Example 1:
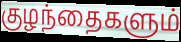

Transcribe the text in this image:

குழந்தைகளும்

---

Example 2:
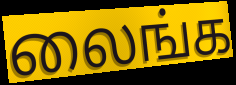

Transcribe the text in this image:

லைங்க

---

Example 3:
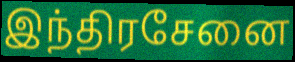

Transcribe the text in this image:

இந்திரசேனை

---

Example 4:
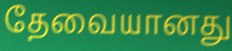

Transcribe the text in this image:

தேவையானது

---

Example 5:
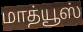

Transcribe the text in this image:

மாத்யூஸ்